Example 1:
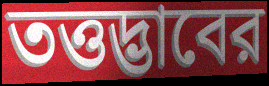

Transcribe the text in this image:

তত্তদ্ভাবের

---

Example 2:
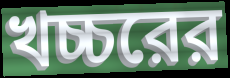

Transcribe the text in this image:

খচ্চরের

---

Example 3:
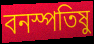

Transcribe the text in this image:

বনস্পতিষু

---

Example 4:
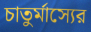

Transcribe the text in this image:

চাতুর্মাস্যের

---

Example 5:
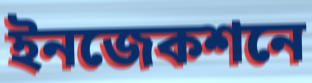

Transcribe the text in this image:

ইনজেকশনে